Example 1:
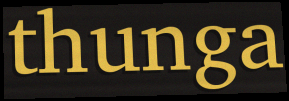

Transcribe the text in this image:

thunga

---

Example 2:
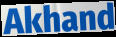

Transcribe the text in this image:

Akhand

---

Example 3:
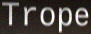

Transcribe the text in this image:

Trope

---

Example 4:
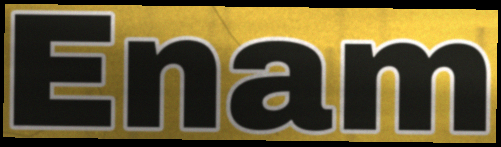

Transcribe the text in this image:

Enam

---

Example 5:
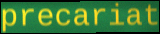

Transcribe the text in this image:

precariat